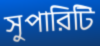
সুপারিটি